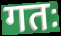
गतः